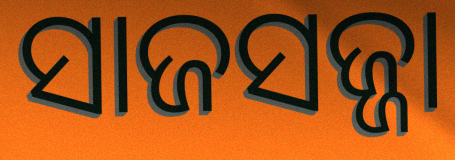
ସାଜସଜ୍ଜା